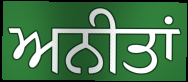
ਅਨੀਤਾਂ